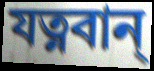
যত্নবান্